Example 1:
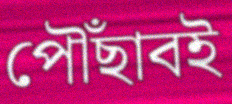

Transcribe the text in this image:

পৌঁছাবই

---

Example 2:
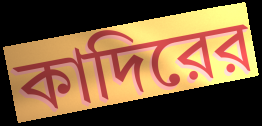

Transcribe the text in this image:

কাদিরের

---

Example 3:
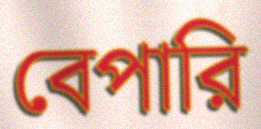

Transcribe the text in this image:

বেপারি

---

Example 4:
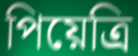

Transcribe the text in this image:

পিয়েত্রি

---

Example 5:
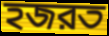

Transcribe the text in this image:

হজরত